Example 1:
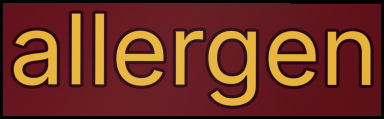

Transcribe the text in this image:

allergen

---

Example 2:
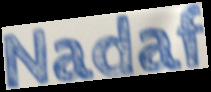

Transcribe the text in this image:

Nadaf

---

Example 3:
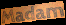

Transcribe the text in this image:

Madam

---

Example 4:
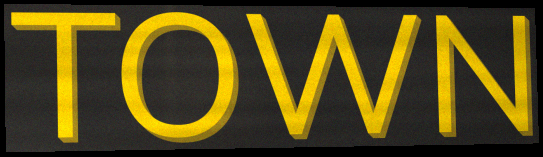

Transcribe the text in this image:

TOWN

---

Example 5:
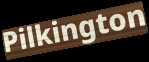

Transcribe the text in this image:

Pilkington